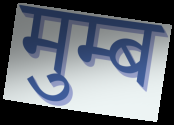
मुम्ब